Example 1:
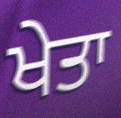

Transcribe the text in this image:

ਖੇਤਾ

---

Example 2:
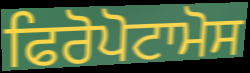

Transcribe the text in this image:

ਫਿਰੋਪੋਟਾਮੋਸ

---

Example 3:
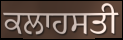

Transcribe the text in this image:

ਕਲਾਹਸਤੀ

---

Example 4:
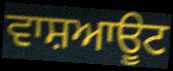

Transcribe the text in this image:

ਵਾਸ਼ਆਊਟ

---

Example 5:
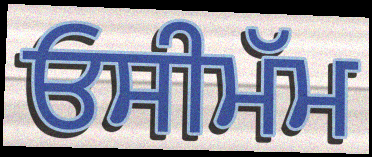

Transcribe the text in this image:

ਓਸੀਮੱਮ